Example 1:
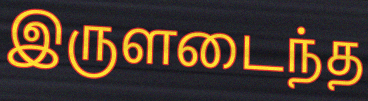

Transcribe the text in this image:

இருளடைந்த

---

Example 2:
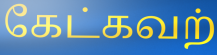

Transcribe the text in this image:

கேட்கவற்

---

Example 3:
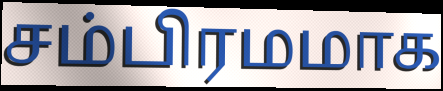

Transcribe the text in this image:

சம்பிரமமாக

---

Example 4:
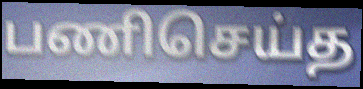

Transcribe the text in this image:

பணிசெய்த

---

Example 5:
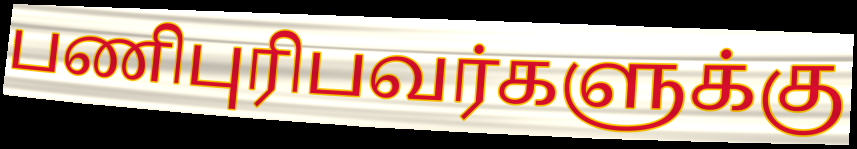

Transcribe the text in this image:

பணிபுரிபவர்களுக்கு